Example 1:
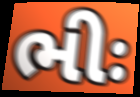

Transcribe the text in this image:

ભીઃ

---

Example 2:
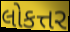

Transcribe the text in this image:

લોકત્તર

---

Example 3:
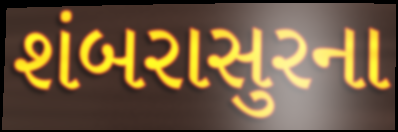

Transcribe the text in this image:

શંબરાસુરના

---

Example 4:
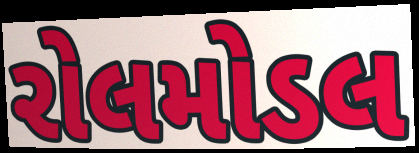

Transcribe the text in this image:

રોલમોડલ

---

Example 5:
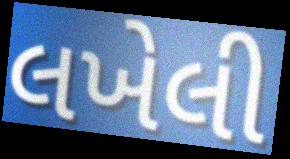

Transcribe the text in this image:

લખેલી